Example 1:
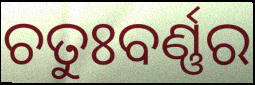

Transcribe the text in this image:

ଚତୁଃବର୍ଣ୍ଣର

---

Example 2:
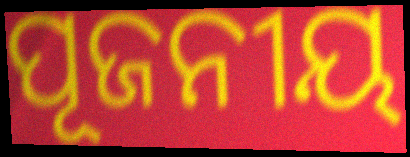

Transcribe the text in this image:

ପୂଜନୀୟ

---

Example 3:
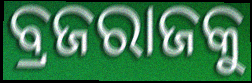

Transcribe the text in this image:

ବ୍ରଜରାଜକୁ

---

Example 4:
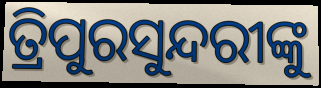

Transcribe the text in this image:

ତ୍ରିପୁରସୁନ୍ଦରୀଙ୍କୁ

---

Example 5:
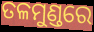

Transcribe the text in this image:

ତଳମୁଣ୍ଡରେ